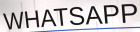
WHATSAPP